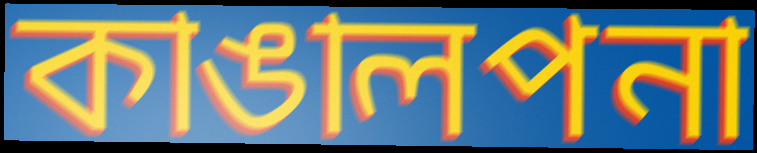
কাঙালপনা